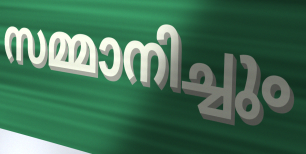
സമ്മാനിച്ചും